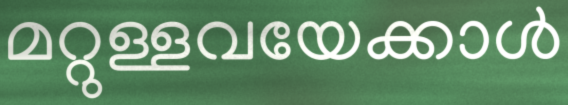
മറ്റുള്ളവയേക്കാൾ